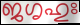
ജഗൃഹുഃ